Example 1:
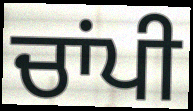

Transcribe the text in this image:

ਚਾਂਪੀ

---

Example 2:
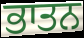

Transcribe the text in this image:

ਭਾਤਨ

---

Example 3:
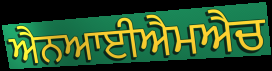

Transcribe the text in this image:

ਐਨਆਈਐਮਐਚ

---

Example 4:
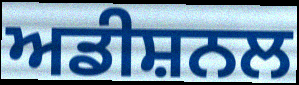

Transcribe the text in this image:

ਅਡੀਸ਼ਨਲ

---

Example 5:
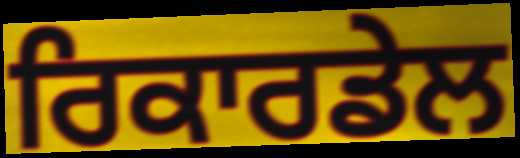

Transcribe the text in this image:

ਰਿਕਾਰਡੇਲ